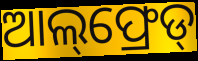
ଆଲ୍‌ଫ୍ରେଡ୍